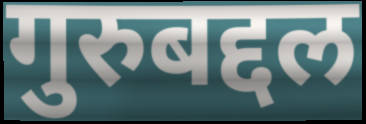
गुरुबद्दल